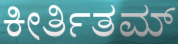
ಕೀರ್ತಿತಮ್